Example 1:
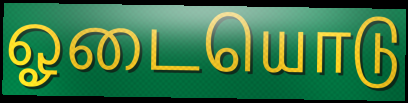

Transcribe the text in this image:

ஓடையொடு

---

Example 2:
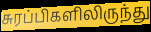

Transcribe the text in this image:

சுரப்பிகளிலிருந்து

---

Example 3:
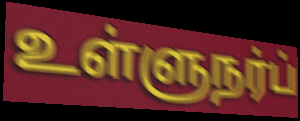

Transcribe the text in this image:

உள்ளுநர்ப்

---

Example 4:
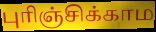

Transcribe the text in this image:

புரிஞ்சிக்காம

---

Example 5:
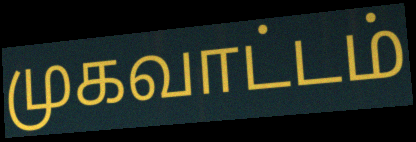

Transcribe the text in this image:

முகவாட்டம்